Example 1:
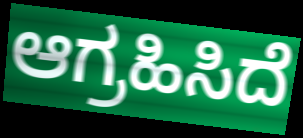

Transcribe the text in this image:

ಆಗ್ರಹಿಸಿದೆ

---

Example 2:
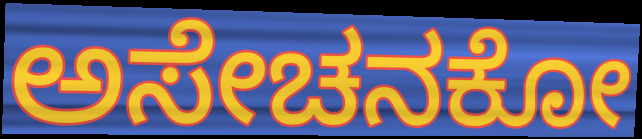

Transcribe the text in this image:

ಅಸೇಚನಕೋ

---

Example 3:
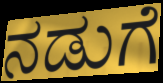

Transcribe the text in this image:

ನಡುಗೆ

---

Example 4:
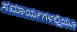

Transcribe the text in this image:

ಸಮಾರ್ಯಗಳಲ್ಲಿಯೂ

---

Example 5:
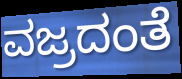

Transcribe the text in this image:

ವಜ್ರದಂತೆ